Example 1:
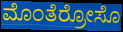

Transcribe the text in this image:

ಮೊಂತೆರ್ರೋಸೊ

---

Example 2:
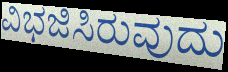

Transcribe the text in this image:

ವಿಭಜಿಸಿರುವುದು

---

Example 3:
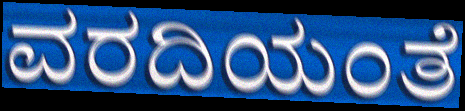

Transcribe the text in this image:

ವರದಿಯಂತೆ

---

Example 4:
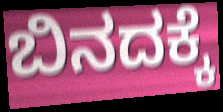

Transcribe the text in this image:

ಬಿನದಕ್ಕೆ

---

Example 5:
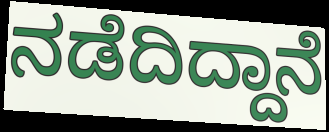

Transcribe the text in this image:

ನಡೆದಿದ್ದಾನೆ